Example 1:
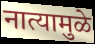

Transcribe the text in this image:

नात्यामुळे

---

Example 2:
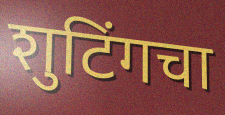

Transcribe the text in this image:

शुटिंगचा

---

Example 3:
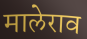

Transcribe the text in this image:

मालेराव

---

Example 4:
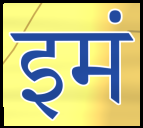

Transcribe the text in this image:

इमं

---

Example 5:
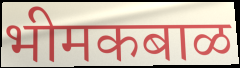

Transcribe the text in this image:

भीमकबाळ